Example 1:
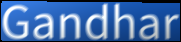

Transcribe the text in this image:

Gandhar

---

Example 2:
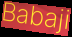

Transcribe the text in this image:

Babaji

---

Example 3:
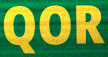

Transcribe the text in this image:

QOR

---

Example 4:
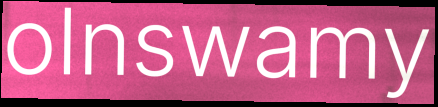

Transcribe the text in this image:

olnswamy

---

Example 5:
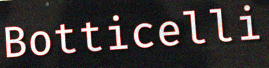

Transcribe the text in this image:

Botticelli